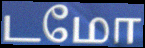
டமோ